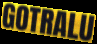
GOTRALU